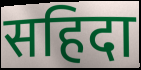
सहिदा